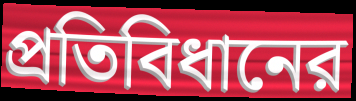
প্রতিবিধানের